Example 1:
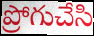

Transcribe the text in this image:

ప్రోగుచేసి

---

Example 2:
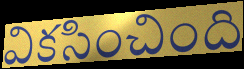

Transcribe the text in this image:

వికసించింది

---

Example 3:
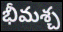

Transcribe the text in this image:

భీమశ్చ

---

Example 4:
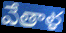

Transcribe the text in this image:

వేతాళ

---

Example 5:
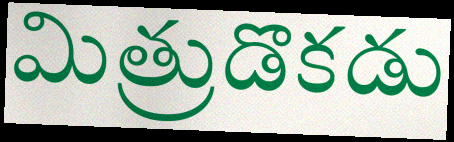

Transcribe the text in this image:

మిత్రుడొకడు